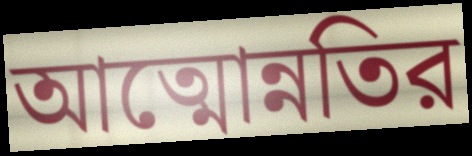
আত্মোন্নতির